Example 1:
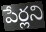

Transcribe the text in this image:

పేర్లని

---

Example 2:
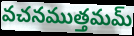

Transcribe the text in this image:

వచనముత్తమమ్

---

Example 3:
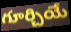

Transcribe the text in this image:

గూర్చియే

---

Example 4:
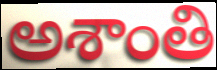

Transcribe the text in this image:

అశాంతి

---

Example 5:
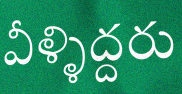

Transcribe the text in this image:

వీళ్ళిద్దరు